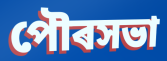
পৌৰসভা